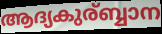
ആദ്യകുര്ബ്ബാന